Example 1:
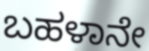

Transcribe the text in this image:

ಬಹಳಾನೇ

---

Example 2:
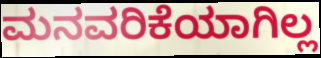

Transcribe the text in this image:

ಮನವರಿಕೆಯಾಗಿಲ್ಲ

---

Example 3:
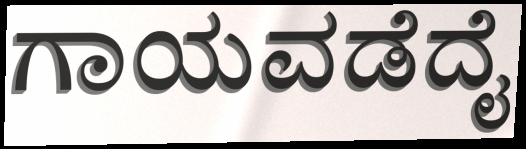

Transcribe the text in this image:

ಗಾಯವಡೆದೈ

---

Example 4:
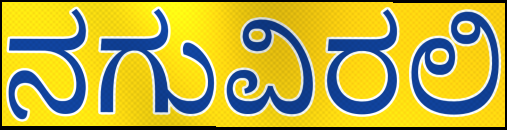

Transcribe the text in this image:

ನಗುವಿರಲಿ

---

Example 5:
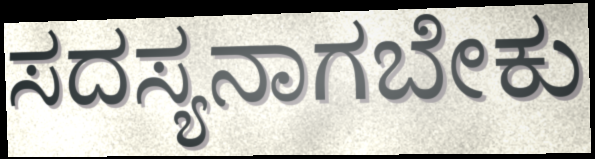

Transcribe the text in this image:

ಸದಸ್ಯನಾಗಬೇಕು